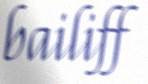
bailiff